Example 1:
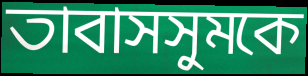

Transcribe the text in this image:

তাবাসসুমকে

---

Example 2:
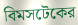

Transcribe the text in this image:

বিমসটেকের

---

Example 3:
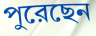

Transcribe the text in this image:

পুরেছেন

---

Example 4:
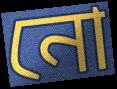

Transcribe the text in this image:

নো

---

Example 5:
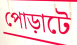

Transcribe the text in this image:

পোড়াটে